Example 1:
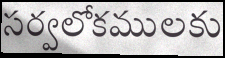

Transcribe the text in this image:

సర్వలోకములకు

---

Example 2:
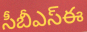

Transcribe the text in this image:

సీబీఎస్ఈ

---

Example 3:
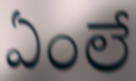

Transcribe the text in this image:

ఏంలే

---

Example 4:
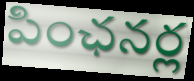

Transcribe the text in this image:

పింఛనర్ల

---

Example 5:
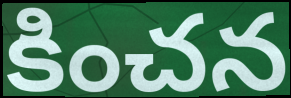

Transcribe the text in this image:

కించన